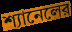
শ্যানেলের